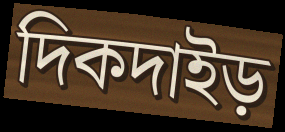
দিকদাইড়